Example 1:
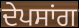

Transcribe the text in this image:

ਦੇਪਸਾਂਗ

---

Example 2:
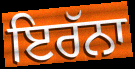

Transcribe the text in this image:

ਇਰੱਨਾ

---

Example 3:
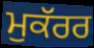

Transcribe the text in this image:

ਮੁਕੱਰਰ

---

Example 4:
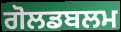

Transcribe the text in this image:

ਗੋਲਡਬਲਮ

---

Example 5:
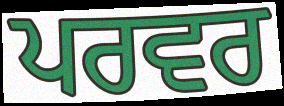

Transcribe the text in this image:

ਪਰਵਰ